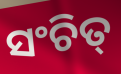
ସଂଚିତ୍